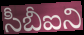
సీబీఐని